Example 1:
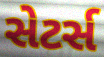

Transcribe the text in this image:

સેટર્સ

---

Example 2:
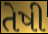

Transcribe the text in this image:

તેષી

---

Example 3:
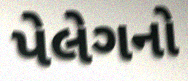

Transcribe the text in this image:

પેલેગનો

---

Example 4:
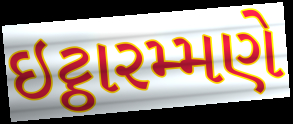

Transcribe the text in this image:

ઇટ્ઠારમ્મણે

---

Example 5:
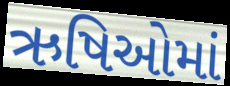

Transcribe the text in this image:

ઋષિઓમાં